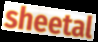
sheetal